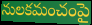
నులకమంచంపై